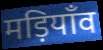
मड़ियाँव